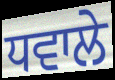
ਧਵਾਲੇ